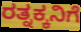
ರತ್ನಕ್ಕನಿಗೆ